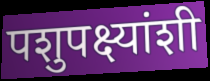
पशुपक्ष्यांशी